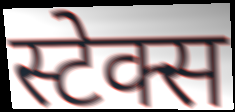
स्टेक्स